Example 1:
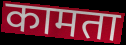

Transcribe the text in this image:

कामता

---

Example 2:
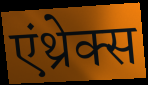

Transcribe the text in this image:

एंथ्रेक्स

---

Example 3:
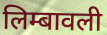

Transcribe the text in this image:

लिम्बावली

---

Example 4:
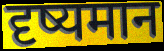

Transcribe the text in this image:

दृष्यमान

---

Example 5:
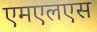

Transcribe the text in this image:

एमएलएस